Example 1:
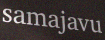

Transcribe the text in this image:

samajavu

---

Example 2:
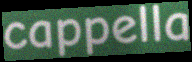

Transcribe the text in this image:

cappella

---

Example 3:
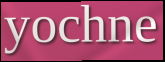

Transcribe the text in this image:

yochne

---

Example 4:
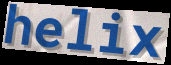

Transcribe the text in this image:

helix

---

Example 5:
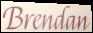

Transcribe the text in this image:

Brendan